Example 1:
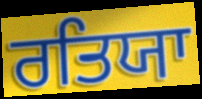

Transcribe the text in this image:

ਰਤਿਯਾ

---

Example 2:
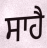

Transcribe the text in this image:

ਸਾਹੈ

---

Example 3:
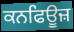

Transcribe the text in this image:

ਕਨਫਿਊਜ਼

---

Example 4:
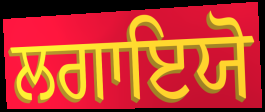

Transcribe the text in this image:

ਲਗਾਇਯੋ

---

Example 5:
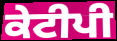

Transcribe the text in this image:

ਕੇਟੀਪੀ